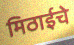
मिठाईचे